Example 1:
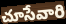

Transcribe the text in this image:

చూసేవారి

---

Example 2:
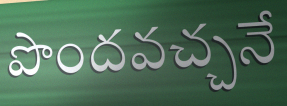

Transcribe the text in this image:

పొందవచ్చనే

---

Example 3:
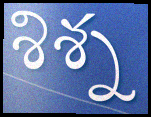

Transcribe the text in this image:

శిశ్న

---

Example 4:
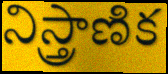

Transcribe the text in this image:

నిస్త్రాణిక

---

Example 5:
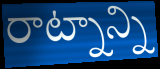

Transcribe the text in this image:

రాట్నాన్ని